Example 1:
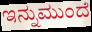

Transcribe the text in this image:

ಇನ್ನುಮುಂದೆ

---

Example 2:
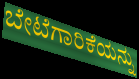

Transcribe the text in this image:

ಬೇಟೆಗಾರಿಕೆಯನ್ನು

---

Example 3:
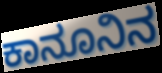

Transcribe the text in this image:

ಕಾನೂನಿನ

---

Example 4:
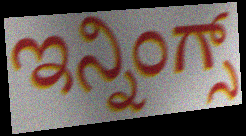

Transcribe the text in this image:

ಇನ್ನಿಂಗ್ಸ್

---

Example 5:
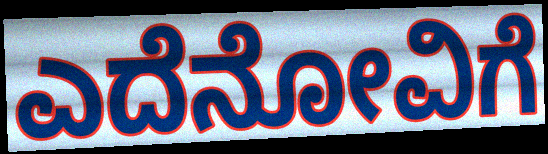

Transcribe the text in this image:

ಎದೆನೋವಿಗೆ